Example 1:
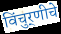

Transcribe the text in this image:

विंचुर्णीचे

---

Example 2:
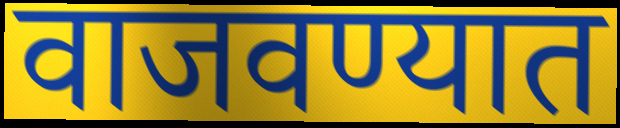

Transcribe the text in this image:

वाजवण्यात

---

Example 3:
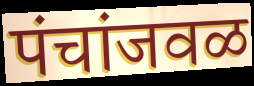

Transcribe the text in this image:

पंचांजवळ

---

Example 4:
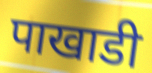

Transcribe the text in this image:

पाखाडी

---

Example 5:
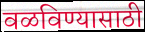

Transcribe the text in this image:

वळविण्यासाठी